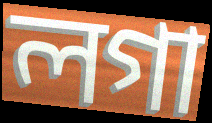
লগা